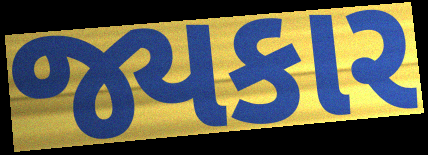
જ્યકાર